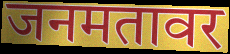
जनमतावर